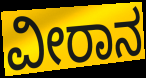
ವೀರಾನ